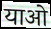
याओ